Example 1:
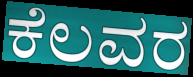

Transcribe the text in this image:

ಕೆಲವರ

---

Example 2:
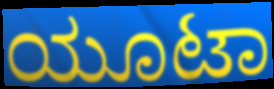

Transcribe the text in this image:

ಯೂಟಾ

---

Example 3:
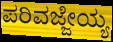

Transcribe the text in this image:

ಪರಿವಜ್ಜೇಯ್ಯ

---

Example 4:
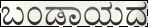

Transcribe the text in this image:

ಬಂಡಾಯದ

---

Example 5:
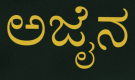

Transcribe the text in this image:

ಅಜೈನ